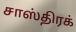
சாஸ்திரக்